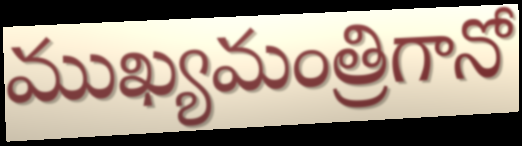
ముఖ్యమంత్రిగానో